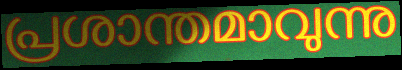
പ്രശാന്തമാവുന്നു